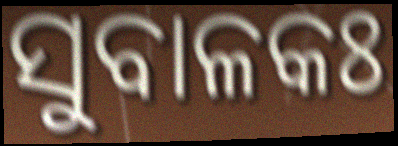
ସୁବାଳକଃ